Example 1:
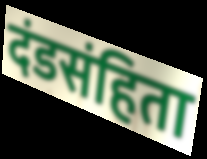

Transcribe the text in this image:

दंडसंहिता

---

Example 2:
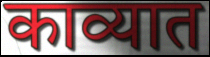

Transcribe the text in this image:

काव्यात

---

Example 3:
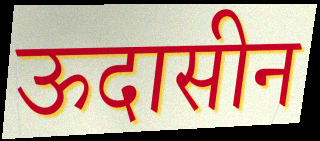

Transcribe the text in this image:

ऊदासीन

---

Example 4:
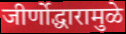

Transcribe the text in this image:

जीर्णोद्धारामुळे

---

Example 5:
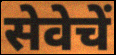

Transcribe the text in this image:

सेवेचें